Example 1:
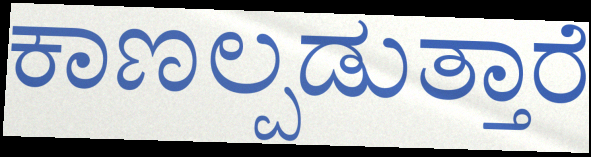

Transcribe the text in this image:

ಕಾಣಲ್ಪಡುತ್ತಾರೆ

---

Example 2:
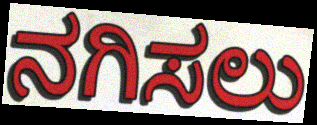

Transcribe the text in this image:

ನಗಿಸಲು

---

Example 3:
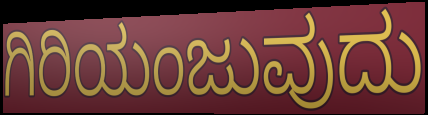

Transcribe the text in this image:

ಗಿರಿಯಂಜುವುದು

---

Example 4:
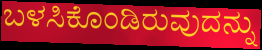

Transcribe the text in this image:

ಬಳಸಿಕೊಂಡಿರುವುದನ್ನು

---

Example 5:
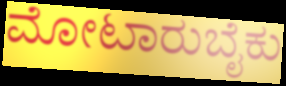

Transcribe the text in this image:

ಮೋಟಾರುಬೈಕು